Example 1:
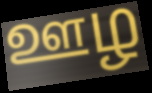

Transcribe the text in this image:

ஊழ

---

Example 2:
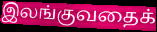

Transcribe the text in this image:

இலங்குவதைக்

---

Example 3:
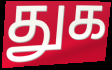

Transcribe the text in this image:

துக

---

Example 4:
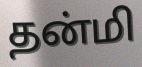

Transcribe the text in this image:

தன்மி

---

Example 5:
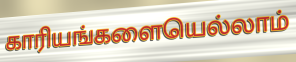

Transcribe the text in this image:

காரியங்களையெல்லாம்